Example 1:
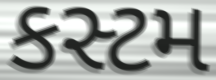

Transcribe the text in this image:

કસ્ટમ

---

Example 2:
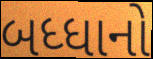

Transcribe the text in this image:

બધ્ધાનો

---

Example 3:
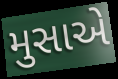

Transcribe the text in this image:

મુસાએ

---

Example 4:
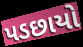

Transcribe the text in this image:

પડછાયો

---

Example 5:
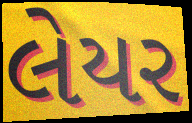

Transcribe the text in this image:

લેયર